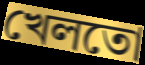
খেলতো